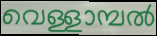
വെള്ളാമ്പൽ